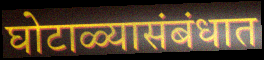
घोटाळ्यासंबंधात